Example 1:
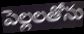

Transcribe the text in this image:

పెల్లలతోను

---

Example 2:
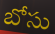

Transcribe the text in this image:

బోసు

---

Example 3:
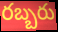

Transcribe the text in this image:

రబ్బరు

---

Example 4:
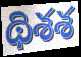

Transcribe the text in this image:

థిశశ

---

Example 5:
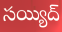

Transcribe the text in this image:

సయ్యిద్